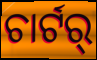
ଚାର୍ଟର୍